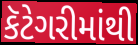
કૅટેગરીમાંથી